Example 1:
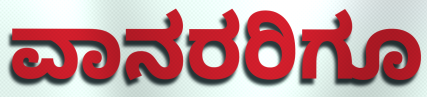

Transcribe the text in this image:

ವಾನರರಿಗೂ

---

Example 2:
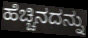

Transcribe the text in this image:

ಹೆಚ್ಚಿನದನ್ನು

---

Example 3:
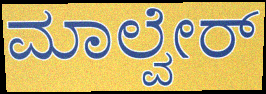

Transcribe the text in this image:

ಮಾಲ್ವೇರ್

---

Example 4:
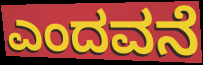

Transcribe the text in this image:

ಎಂದವನೆ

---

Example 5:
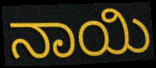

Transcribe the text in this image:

ನಾಯಿ